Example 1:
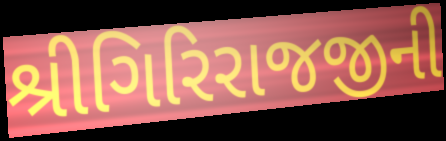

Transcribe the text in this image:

શ્રીગિરિરાજજીની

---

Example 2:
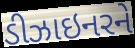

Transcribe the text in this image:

ડીઝાઇનરને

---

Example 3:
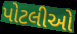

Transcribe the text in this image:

પોટલીઓ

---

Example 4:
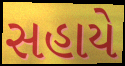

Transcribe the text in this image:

સહાયે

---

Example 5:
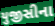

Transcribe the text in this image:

યુજીસીના